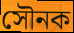
সৌনক